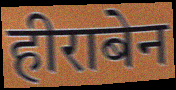
हीराबेन